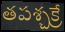
తపశ్చక్రే